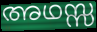
അഥസ്സ